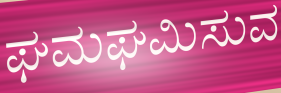
ಘಮಘಮಿಸುವ